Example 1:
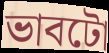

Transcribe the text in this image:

ভাবটো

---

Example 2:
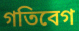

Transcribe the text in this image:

গতিবেগ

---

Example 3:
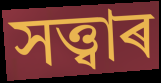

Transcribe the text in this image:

সত্ত্বাৰ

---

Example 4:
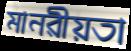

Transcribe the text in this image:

মানৱীয়তা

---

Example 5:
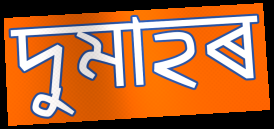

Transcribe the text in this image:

দুমাহৰ